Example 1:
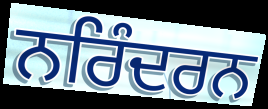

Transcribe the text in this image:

ਨਰਿੰਦਰਨ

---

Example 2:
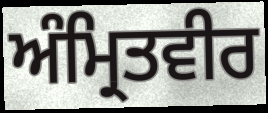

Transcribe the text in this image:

ਅੰਮ੍ਰਿਤਵੀਰ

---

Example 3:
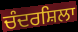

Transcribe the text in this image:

ਚੰਦਰਸ਼ਿਲਾ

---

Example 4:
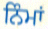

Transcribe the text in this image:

ਨਿੰਮਾਂ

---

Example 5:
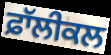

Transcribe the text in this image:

ਫ਼ਾੱਲੀਕਲ